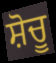
ਸ਼ੋਚੂ